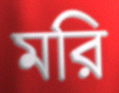
মরি